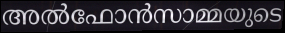
അൽഫോൻസാമ്മയുടെ